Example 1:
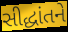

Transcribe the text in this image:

સીદ્ધાંતને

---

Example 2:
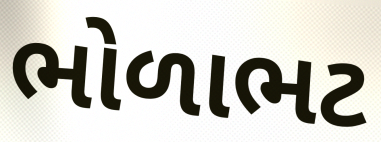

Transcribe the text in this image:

ભોળાભટ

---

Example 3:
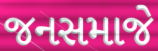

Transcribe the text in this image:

જનસમાજે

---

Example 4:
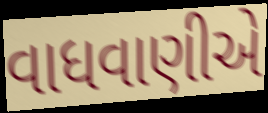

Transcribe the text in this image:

વાધવાણીએ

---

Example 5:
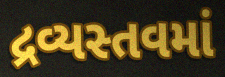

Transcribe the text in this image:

દ્રવ્યસ્તવમાં